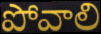
పోవాలి